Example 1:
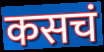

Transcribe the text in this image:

कसचं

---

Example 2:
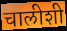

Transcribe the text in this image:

चालीशी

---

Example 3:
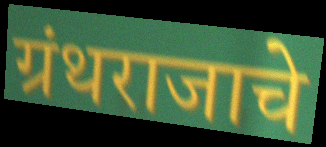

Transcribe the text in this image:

ग्रंथराजाचे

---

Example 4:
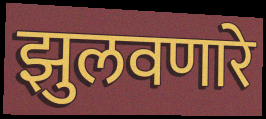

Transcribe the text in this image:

झुलवणारे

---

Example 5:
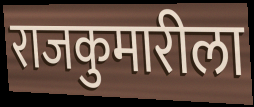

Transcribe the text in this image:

राजकुमारीला